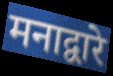
मनाद्वारे